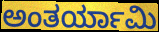
ಅಂತರ್ಯಾಮಿ